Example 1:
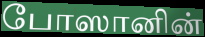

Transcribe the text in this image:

போஸானின்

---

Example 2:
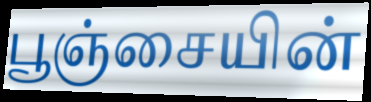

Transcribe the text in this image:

பூஞ்சையின்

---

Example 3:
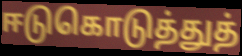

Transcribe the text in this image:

ஈடுகொடுத்துத்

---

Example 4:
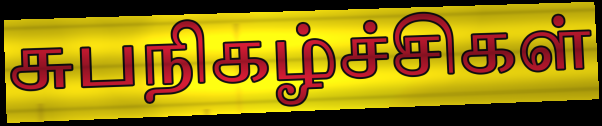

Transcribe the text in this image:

சுபநிகழ்ச்சிகள்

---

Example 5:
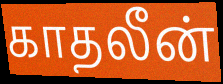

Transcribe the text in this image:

காதலீன்